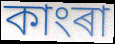
কাংৰা